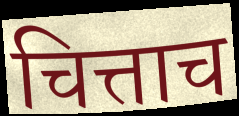
चित्ताच